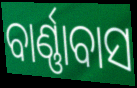
ବାର୍ଣ୍ଣାବାସ